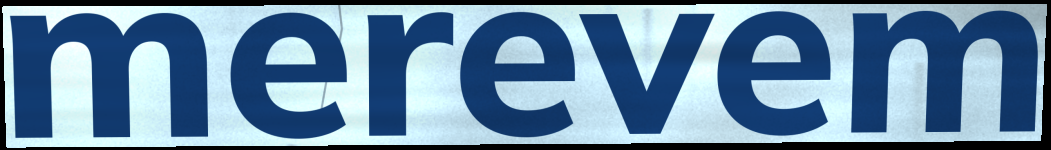
merevem